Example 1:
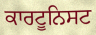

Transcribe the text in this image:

ਕਾਰਟੂਨਿਸਟ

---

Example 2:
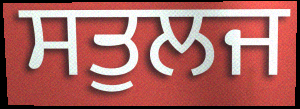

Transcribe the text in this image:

ਸਤੁਲਜ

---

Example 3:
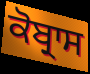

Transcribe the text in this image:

ਕੋਬ੍ਰਾਸ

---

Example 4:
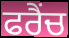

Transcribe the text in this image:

ਫਰੈਂਚ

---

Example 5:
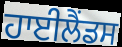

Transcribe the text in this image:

ਹਾਈਲੈਂਡਸ